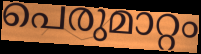
പെരുമാറ്റം